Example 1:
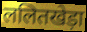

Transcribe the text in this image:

ललितखेड़ा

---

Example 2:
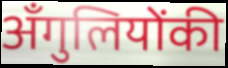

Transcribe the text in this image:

अँगुलियोंकी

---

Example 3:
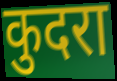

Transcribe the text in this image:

कुदरा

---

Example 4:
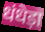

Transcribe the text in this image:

धंधेड़ा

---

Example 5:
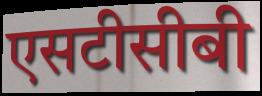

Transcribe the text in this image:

एसटीसीबी